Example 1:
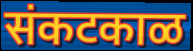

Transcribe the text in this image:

संकटकाळ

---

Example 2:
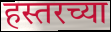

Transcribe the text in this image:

हस्तरच्या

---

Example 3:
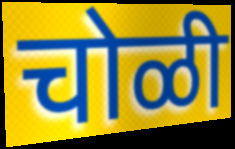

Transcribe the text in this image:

चोळी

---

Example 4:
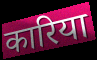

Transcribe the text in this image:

कारिया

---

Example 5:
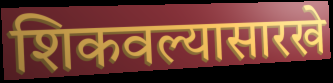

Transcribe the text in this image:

शिकवल्यासारखे